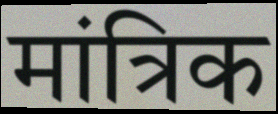
मांत्रिक